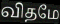
விதமே